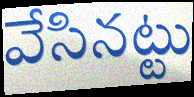
వేసినట్టు